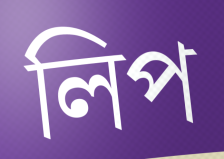
লিপ